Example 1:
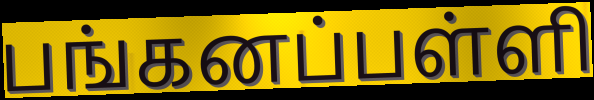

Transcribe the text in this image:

பங்கனப்பள்ளி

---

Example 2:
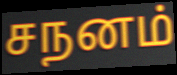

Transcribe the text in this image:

சநனம்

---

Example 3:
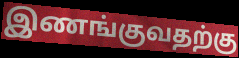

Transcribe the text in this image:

இணங்குவதற்கு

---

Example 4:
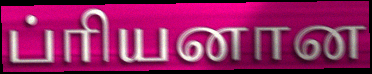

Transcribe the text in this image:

ப்ரியனான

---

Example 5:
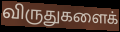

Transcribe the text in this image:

விருதுகளைக்